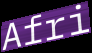
Afri